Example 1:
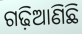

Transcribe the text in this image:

ଗଢ଼ିଆଣିଛି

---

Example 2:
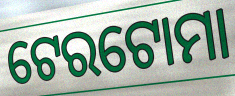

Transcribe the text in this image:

ଟେରଟୋମା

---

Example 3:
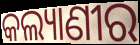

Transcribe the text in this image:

କଲ୍ୟାଣୀର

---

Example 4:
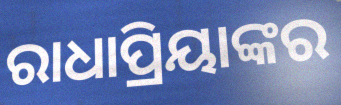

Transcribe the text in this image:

ରାଧାପ୍ରିୟାଙ୍କର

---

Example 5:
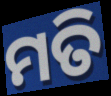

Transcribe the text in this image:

ମତି